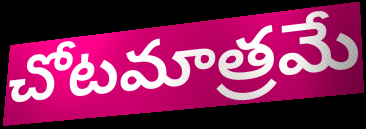
చోటమాత్రమే